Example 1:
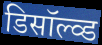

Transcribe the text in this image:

डिसॉल्व्ड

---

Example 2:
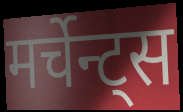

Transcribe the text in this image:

मर्चेन्ट्स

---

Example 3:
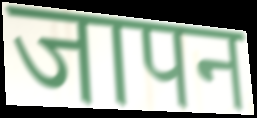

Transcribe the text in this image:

जापन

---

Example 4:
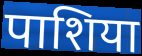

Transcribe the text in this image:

पाशिया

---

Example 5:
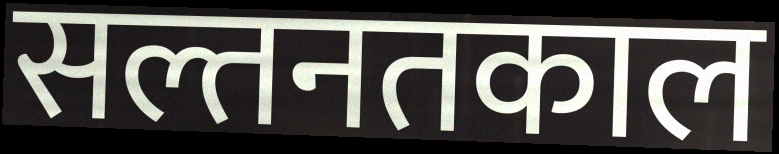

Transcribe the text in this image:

सल्तनतकाल